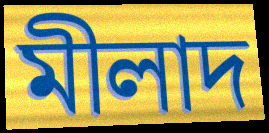
মীলাদ